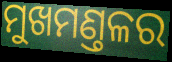
ମୁଖମଣ୍ତଳର